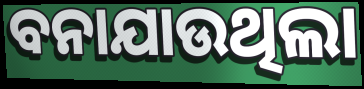
ବନାଯାଉଥିଲା